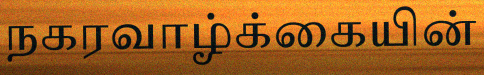
நகரவாழ்க்கையின்